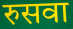
रुसवा